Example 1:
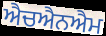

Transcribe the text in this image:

ਐਚਐਨਐਮ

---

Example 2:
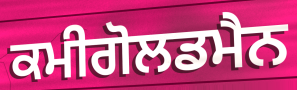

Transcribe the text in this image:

ਕਮੀਗੋਲਡਮੈਨ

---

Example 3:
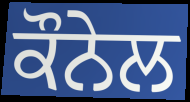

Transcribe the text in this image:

ਕੌਨੇਲ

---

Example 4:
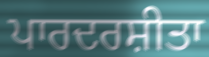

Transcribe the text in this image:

ਪਾਰਦਰਸ਼ੀਤਾ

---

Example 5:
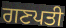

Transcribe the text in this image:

ਗਣਪਤੀ